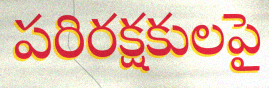
పరిరక్షకులపై